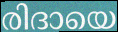
രിദായെ